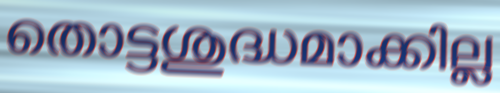
തൊട്ടശുദ്ധമാക്കില്ല